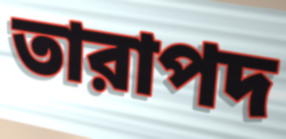
তারাপদ